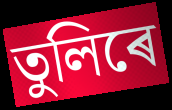
তুলিৰে